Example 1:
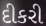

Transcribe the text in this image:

દીકરી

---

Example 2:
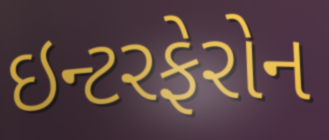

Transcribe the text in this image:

ઇન્ટરફેરોન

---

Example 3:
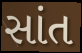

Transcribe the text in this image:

સાંત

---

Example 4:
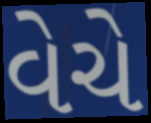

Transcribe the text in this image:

વેચે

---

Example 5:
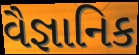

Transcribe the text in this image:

વૈજ્ઞાનિક